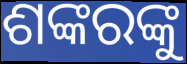
ଶଙ୍କରଙ୍କୁ